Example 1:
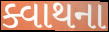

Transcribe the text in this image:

ક્વાથના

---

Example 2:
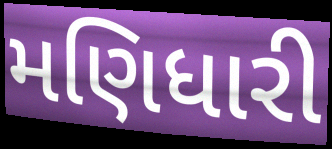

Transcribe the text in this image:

મણિધારી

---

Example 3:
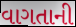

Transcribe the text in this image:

વાગતાની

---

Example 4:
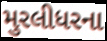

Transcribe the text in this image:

મુરલીધરના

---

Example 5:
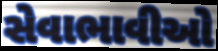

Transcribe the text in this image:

સેવાભાવીઓ